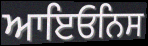
ਆਇਓਨਿਸ